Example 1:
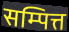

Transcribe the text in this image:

सम्पित्त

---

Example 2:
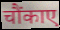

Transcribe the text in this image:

चौंकाए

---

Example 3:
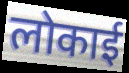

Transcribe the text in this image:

लोकाई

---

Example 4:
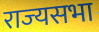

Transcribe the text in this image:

राज्‍यसभा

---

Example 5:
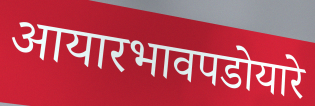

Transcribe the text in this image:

आयारभावपडोयारे